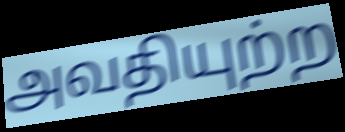
அவதியுற்ற